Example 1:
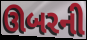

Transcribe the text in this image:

ઊબરની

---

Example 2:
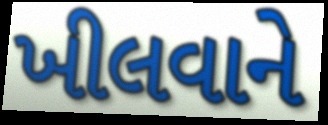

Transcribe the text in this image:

ખીલવાને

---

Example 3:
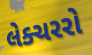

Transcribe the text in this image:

લેક્ચરરો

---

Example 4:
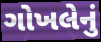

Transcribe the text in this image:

ગોખલેનું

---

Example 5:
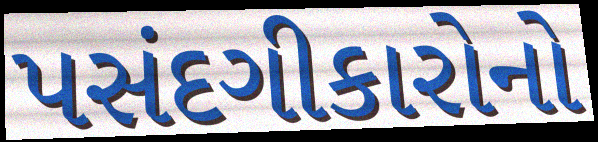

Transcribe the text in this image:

પસંદગીકારોનો